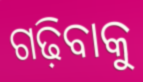
ଗଢ଼ିବାକୁ